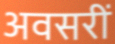
अवसरीं